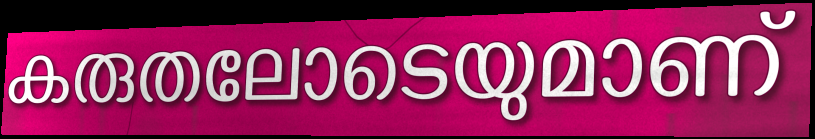
കരുതലോടെയുമാണ്